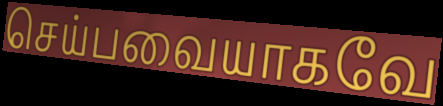
செய்பவையாகவே